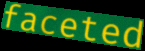
faceted